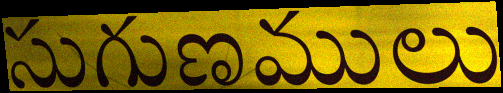
సుగుణములు